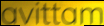
avittam